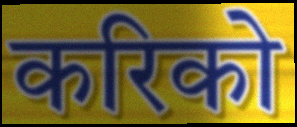
करिको